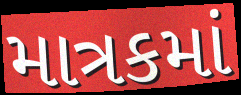
માત્રકમાં